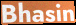
Bhasin